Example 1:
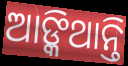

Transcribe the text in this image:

ଆଙ୍କିଥାନ୍ତି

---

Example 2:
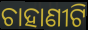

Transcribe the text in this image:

ଚାହାଣୀଟି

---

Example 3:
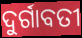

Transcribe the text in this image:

ଦୁର୍ଗାବତୀ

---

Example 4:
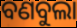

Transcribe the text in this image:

ବଣବୁଲା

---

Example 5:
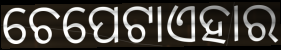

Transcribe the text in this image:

ଚେପେଟାଏହାର